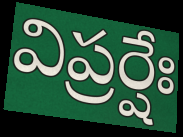
విప్రర్షేః